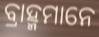
ବ୍ରାହ୍ମମାନେ